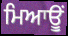
ਮਿਆਊਂ